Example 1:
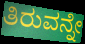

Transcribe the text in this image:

ತಿರುವನ್ನೇ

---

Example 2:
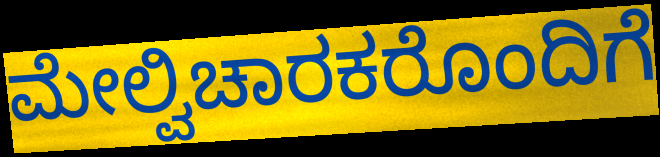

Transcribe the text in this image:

ಮೇಲ್ವಿಚಾರಕರೊಂದಿಗೆ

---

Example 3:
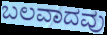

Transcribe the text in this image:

ಬಲವಾದವು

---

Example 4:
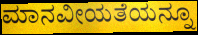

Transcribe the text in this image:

ಮಾನವೀಯತೆಯನ್ನೂ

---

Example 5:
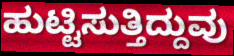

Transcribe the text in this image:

ಹುಟ್ಟಿಸುತ್ತಿದ್ದುವು